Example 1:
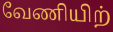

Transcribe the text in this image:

வேணியிற்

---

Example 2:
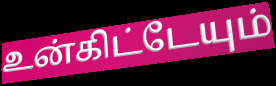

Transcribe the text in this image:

உன்கிட்டேயும்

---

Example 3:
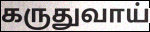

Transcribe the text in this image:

கருதுவாய்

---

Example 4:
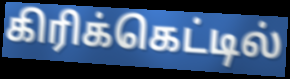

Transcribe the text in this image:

கிரிக்கெட்டில்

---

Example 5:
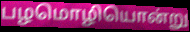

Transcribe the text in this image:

பழமொழியொன்று